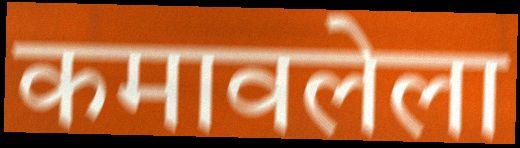
कमावलेला